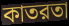
কাতরতা